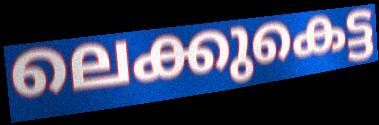
ലെക്കുകെട്ട